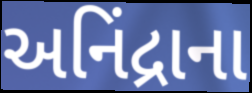
અનિંદ્રાના